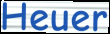
Heuer